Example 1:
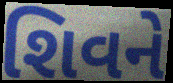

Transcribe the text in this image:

શિવને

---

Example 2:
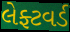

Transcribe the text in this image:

લેફ્ટવર્ડ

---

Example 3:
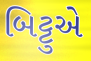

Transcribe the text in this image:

બિટ્ટુએ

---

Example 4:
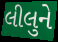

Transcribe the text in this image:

લીલુને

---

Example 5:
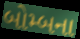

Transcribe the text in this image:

બોમ્બના